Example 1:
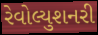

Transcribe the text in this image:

રેવોલ્યુશનરી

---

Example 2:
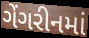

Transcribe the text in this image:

ગેંગરીનમાં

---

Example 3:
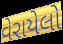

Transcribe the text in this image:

વેરાયેલો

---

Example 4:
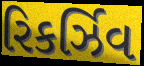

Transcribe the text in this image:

રિકર્ઝિવ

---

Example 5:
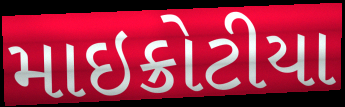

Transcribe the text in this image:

માઇક્રોટીયા